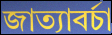
জাত্যাবৰ্চা